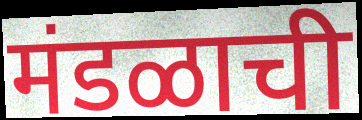
मंडळाची